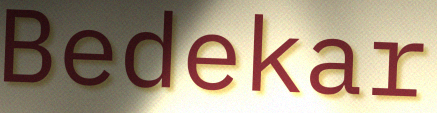
Bedekar